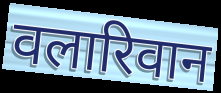
वलारिवान